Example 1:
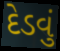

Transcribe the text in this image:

દેડવું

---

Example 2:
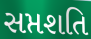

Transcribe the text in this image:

સપ્તશતિ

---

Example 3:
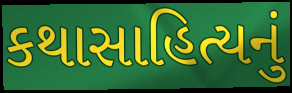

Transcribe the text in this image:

કથાસાહિત્યનું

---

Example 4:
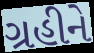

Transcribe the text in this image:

ગ્રહીને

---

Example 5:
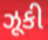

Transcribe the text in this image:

ઝૂકી